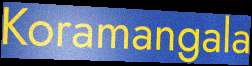
Koramangala